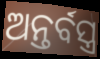
ଅନ୍ତର୍ବସ୍ତ୍ର